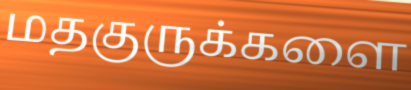
மதகுருக்களை